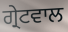
ਗ੍ਰੇਟਵਾਲ